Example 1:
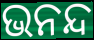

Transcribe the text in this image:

ଭନନ୍ଦ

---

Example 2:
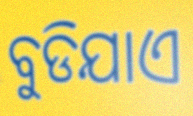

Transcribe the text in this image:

ବୁଡିଯାଏ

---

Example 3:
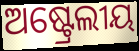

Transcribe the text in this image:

ଅଷ୍ଟ୍ରେଲୀୟ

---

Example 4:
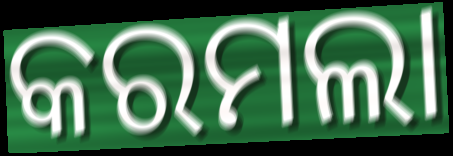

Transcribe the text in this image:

କରମଲା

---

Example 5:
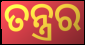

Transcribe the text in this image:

ତନ୍ତ୍ରର